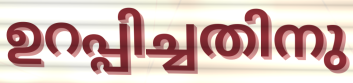
ഉറപ്പിച്ചതിനു